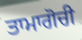
ਤਾਮਾਗੋਚੀ